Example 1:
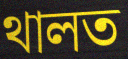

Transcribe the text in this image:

থালত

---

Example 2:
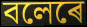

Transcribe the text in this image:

বলেৰে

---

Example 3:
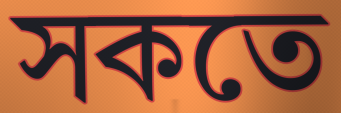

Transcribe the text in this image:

সকতে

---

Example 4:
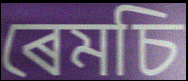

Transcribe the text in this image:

ৰেমচি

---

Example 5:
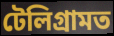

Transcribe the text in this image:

টেলিগ্ৰামত